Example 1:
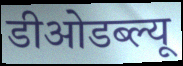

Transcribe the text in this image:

डीओडब्ल्यू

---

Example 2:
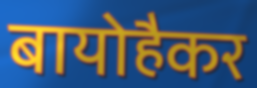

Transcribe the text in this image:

बायोहैकर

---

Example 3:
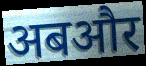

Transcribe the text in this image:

अबऔर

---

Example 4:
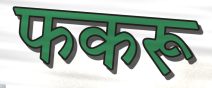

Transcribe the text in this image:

फकरू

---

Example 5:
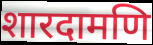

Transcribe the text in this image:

शारदामणि